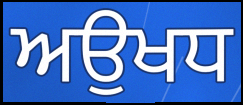
ਅਉਖਧ